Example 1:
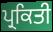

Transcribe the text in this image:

ਪ੍ਰਕਿਤੀ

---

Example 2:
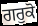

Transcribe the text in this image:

ਗਰੁਕੋ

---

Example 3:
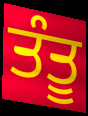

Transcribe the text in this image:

ਤੰਤੂ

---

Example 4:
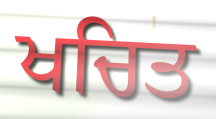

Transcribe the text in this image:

ਖਚਿਤ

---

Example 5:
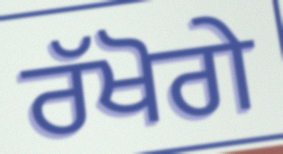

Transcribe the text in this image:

ਰੱਖੋਗੇ